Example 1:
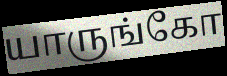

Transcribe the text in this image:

யாருங்கோ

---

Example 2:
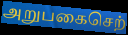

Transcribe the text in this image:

அறுபகைசெற்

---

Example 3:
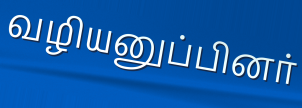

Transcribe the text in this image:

வழியனுப்பினர்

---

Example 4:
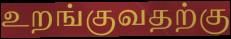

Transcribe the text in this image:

உறங்குவதற்கு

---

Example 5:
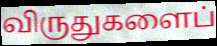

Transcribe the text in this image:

விருதுகளைப்